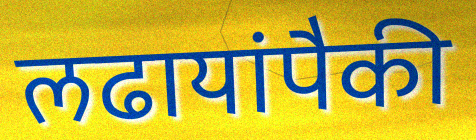
लढायांपैकी